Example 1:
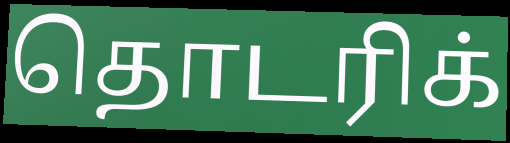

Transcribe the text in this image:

தொடரிக்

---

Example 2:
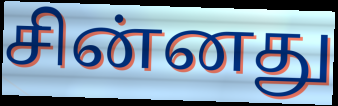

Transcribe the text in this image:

சின்னது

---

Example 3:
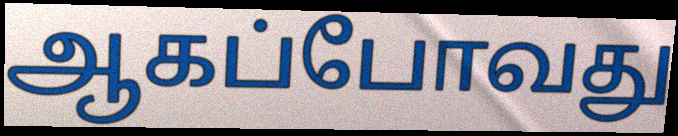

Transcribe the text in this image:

ஆகப்போவது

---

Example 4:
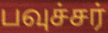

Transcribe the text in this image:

பவுச்சர்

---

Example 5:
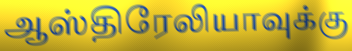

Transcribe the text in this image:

ஆஸ்திரேலியாவுக்கு